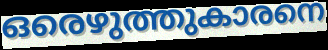
ഒരെഴുത്തുകാരനെ